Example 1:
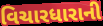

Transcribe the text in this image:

વિચારધારાની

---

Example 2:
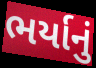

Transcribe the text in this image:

ભર્યાનું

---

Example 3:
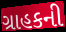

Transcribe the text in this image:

ગ્રાહકની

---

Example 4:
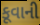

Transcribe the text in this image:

કૂવાની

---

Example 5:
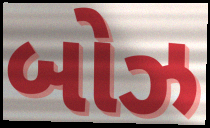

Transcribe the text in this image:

બોઝ